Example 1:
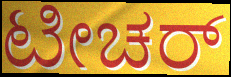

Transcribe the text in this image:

ಟೀಚರ್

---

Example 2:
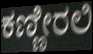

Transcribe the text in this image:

ಕಣ್ಣೀರಲಿ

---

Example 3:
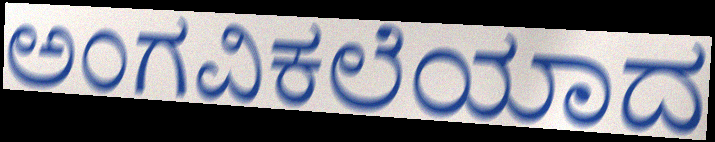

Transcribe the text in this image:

ಅಂಗವಿಕಲೆಯಾದ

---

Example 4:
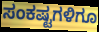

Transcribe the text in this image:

ಸಂಕಷ್ಟಗಳಿಗೂ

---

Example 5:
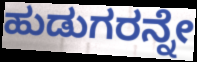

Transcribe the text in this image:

ಹುಡುಗರನ್ನೇ